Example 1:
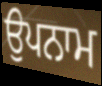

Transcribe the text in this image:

ਉਪਨਾਮ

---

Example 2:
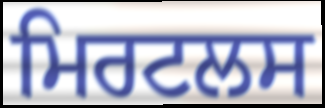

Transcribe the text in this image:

ਮਿਰਟਲਸ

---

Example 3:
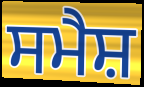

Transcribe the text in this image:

ਸਮੈਸ਼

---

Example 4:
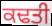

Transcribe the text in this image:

ਕਢਤੀ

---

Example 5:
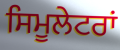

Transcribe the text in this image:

ਸਿਮੂਲੇਟਰਾਂ